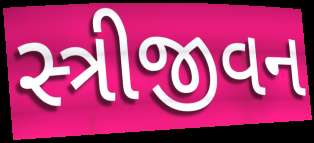
સ્ત્રીજીવન